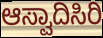
ಆಸ್ವಾದಿಸಿರಿ